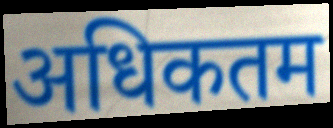
अधिकतम